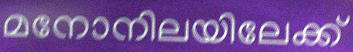
മനോനിലയിലേക്ക്